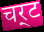
चर्ट